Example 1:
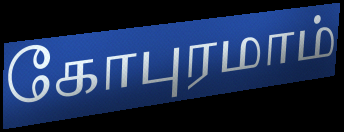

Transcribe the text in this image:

கோபுரமாம்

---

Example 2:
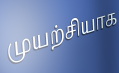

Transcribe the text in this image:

முயற்சியாக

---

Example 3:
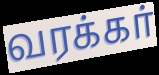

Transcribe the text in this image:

வரக்கர்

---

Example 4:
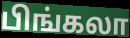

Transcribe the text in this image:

பிங்கலா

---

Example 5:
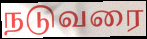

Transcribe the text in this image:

நடுவரை